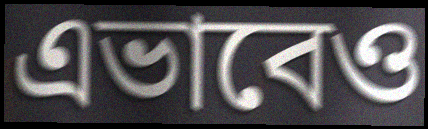
এভাবেও